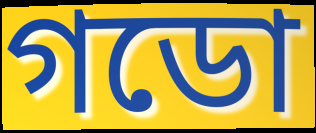
গডো